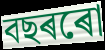
বছৰৰো